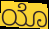
ಯೊ